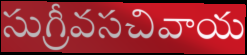
సుగ్రీవసచివాయ